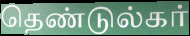
தெண்டுல்கர்